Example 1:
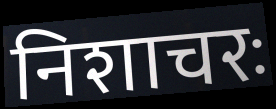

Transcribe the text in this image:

निशाचरः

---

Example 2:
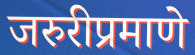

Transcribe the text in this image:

जरुरीप्रमाणे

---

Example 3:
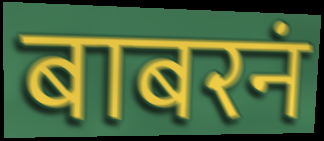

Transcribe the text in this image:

बाबरनं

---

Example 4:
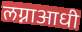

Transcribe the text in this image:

लग्नाआधी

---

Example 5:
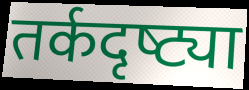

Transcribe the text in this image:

तर्कदृष्ट्या